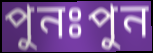
পুনঃপুন